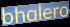
bhalero